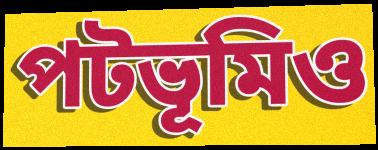
পটভূমিও